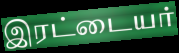
இரட்டையர்